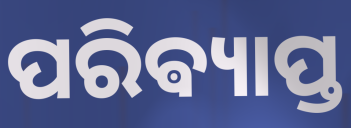
ପରିଵ୍ୟାପ୍ତ